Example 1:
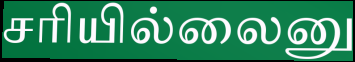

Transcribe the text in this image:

சரியில்லைனு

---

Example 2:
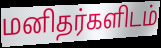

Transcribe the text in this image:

மனிதர்களிடம்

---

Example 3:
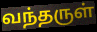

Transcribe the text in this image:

வந்தருள்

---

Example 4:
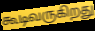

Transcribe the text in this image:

கூடிவருகிறது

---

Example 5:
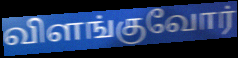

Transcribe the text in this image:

விளங்குவோர்